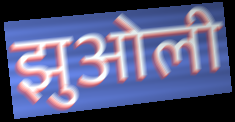
झुओली